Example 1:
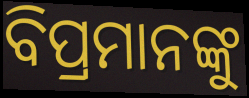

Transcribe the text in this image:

ବିପ୍ରମାନଙ୍କୁ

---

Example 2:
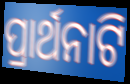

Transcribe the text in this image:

ପ୍ରାର୍ଥନାଟି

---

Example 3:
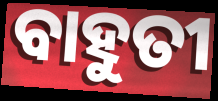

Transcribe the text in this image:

ବାହୁତୀ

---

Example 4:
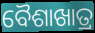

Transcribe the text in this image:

ବୈଶାଖାତ୍ର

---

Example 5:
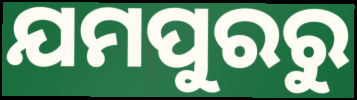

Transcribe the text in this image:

ଯମପୁରରୁ